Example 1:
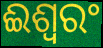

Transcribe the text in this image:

ଈଶ୍ୱରଂ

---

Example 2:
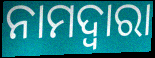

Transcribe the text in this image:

ନାମଦ୍ଵାରା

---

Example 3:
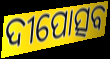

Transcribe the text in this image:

ଦୀପୋତ୍ସବ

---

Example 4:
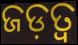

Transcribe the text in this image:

ଜଡ଼ତ୍ଵ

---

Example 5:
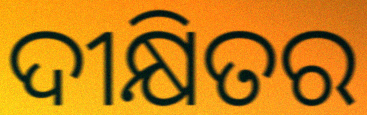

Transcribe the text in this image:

ଦୀକ୍ଷିତର